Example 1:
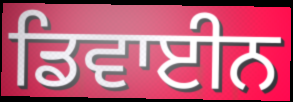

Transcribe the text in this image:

ਡਿਵਾਈਨ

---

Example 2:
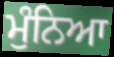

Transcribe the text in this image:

ਮੁੰਨਿਆ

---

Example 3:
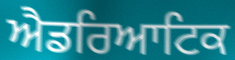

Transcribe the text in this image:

ਐਡਰਿਆਟਿਕ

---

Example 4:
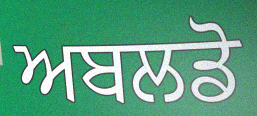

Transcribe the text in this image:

ਅਬਲਡੋ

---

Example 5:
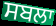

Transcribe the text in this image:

ਸਬਲਾ